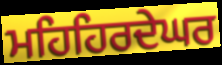
ਮਹਿਹਿਰਦੇਘਰ